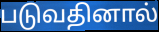
படுவதினால்